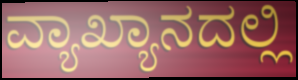
ವ್ಯಾಖ್ಯಾನದಲ್ಲಿ